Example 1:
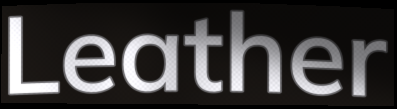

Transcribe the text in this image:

Leather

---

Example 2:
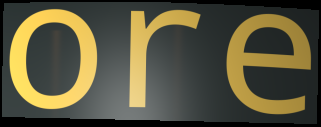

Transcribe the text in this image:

ore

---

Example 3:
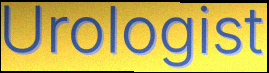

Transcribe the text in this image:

Urologist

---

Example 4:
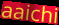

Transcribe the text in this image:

aaichi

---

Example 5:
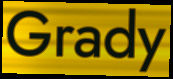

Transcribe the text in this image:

Grady